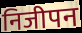
निजीपन